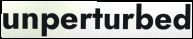
unperturbed